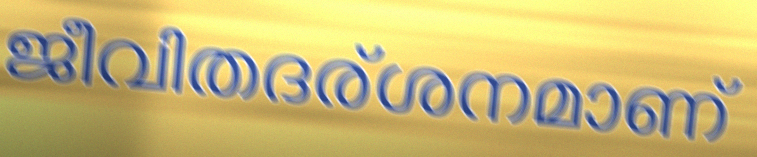
ജീവിതദര്ശനമാണ്